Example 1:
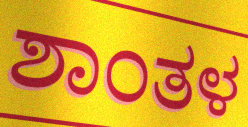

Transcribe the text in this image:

ಶಾಂತಳ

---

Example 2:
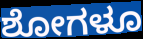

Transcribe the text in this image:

ಶೋಗಳೂ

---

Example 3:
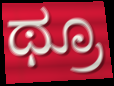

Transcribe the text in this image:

ಥ್ರೂ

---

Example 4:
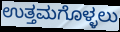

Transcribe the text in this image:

ಉತ್ತಮಗೊಳ್ಳಲು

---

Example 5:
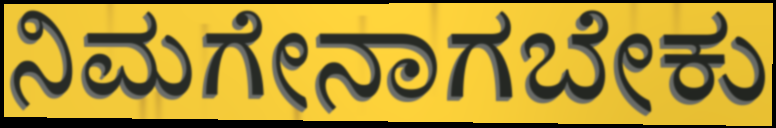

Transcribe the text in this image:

ನಿಮಗೇನಾಗಬೇಕು